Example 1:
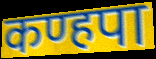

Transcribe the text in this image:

कण्हपा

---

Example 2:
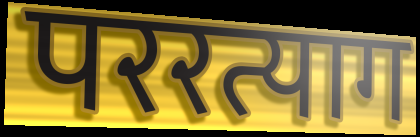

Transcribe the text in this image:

पररत्याग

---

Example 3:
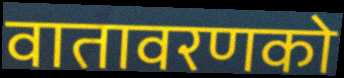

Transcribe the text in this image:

वातावरणको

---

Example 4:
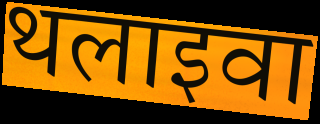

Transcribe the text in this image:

थलाइवा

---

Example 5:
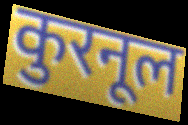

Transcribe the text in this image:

कुरनूल